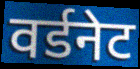
वर्डनेट